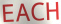
EACH